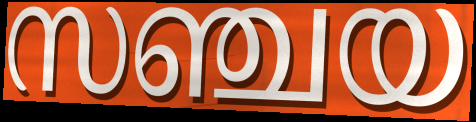
സഞ്ചയ